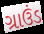
ગ્રાઉંડ